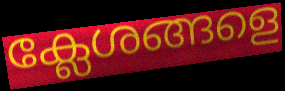
ക്ലേശങ്ങളെ